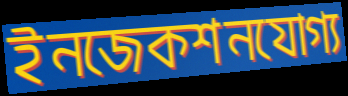
ইনজেকশনযোগ্য